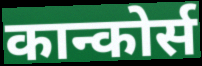
कान्कोर्स